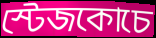
স্টেজকোচে